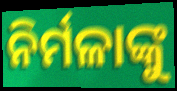
ନିର୍ମଳାଙ୍କୁ